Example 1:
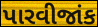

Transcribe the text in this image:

પારવીજાંક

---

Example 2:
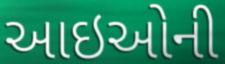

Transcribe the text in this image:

આઇઓની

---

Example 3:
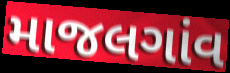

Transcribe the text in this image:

માજલગાંવ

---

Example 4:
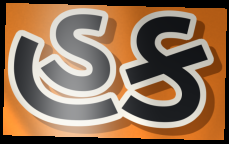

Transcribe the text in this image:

હક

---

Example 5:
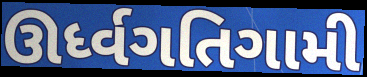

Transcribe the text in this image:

ઊર્ધ્વગતિગામી